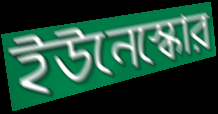
ইউনেস্কোর